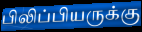
பிலிப்பியருக்கு